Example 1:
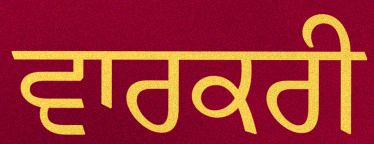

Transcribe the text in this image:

ਵਾਰਕਰੀ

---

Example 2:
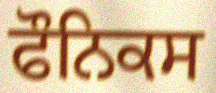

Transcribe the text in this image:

ਫੌਨਿਕਸ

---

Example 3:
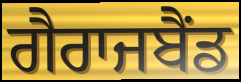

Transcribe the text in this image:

ਗੈਰਾਜਬੈਂਡ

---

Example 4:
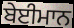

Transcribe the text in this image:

ਬੇਈਮਾਨ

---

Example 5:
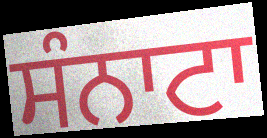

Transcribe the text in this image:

ਸੰਨਾਟਾ